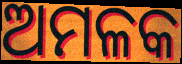
ଅମଳକ